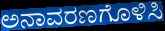
ಅನಾವರಣಗೊಳಿಸಿ